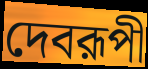
দেবরূপী